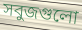
সবুজগুলো